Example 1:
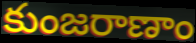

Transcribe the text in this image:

కుంజరాణాం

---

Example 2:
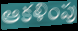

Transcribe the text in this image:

ఆకళింపు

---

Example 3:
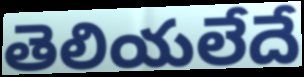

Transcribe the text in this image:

తెలియలేదే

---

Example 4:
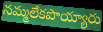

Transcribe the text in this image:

నమ్మలేకపొయ్యారు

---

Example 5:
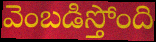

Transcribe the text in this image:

వెంబడిస్తోంది